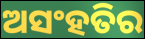
ଅସଂହତିର